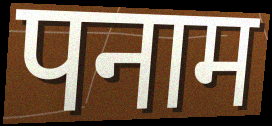
पनाम